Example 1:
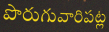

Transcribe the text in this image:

పొరుగువారిపట్ల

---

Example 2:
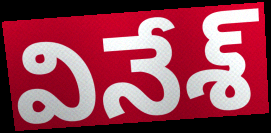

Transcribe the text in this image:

వినేశ్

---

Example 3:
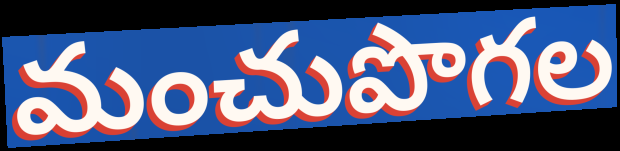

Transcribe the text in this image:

మంచుపొగల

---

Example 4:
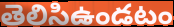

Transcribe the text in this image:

తెలిసిఉండటం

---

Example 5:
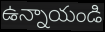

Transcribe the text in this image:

ఉన్నాయండి